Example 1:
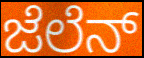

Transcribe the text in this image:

ಜೆಲೆನ್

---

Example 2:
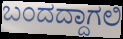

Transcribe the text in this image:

ಬಂದದ್ದಾಗಲಿ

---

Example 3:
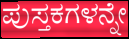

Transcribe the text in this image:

ಪುಸ್ತಕಗಳನ್ನೇ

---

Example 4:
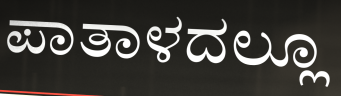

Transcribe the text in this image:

ಪಾತಾಳದಲ್ಲೂ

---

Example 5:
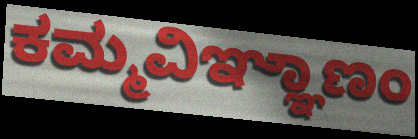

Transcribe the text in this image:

ಕಮ್ಮವಿಞ್ಞಾಣಂ